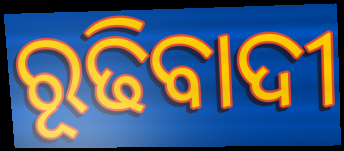
ରୂଢିବାଦୀ